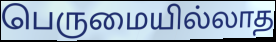
பெருமையில்லாத